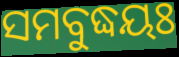
ସମବୁଦ୍ଧୟଃ